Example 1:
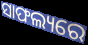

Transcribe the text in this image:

ସାଫଲ୍ୟରେ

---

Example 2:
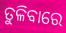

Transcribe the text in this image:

ତୁଳିବାରେ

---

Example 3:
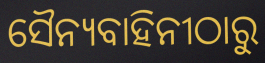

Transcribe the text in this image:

ସୈନ୍ୟବାହିନୀଠାରୁ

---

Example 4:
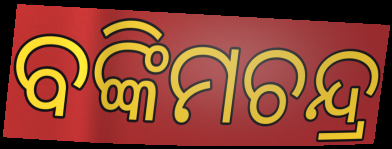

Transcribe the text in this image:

ବଙ୍କିମଚନ୍ଦ୍ର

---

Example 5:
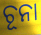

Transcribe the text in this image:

ଚୂନା